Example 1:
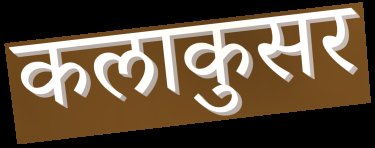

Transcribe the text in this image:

कलाकुसर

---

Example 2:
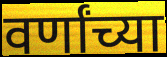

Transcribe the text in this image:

वर्णांच्या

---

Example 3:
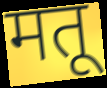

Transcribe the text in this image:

मतू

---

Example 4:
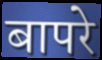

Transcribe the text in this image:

बापरे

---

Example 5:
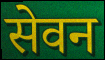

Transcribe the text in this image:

सेवन